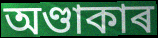
অণ্ডাকাৰ